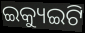
ଇକ୍ୟୁଇଟି